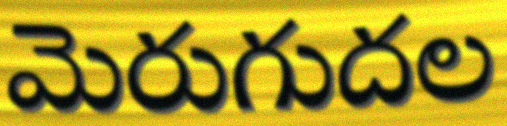
మెరుగుదల